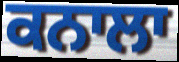
ਕਨਾਲਾ